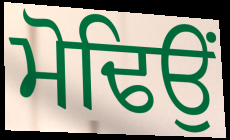
ਮੋਢਿਉਂ